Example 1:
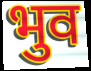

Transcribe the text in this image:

भुव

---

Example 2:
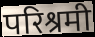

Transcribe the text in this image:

परिश्रमी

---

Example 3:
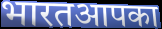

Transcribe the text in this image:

भारतआपका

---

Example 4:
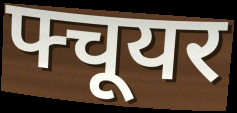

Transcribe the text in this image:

फ्चूयर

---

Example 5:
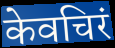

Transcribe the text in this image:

केवचिरं